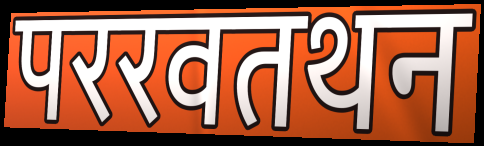
पररवतथन